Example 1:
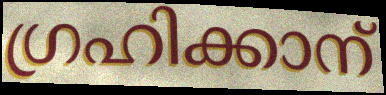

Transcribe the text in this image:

ഗ്രഹിക്കാന്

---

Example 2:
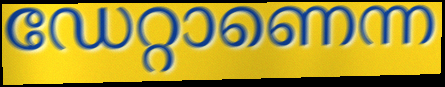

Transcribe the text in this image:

ഡേറ്റാണെന്ന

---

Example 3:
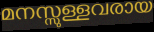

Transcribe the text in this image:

മനസ്സുള്ളവരായ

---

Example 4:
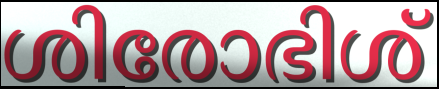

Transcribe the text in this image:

ശിരോഭിശ്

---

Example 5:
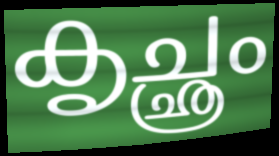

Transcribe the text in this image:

കൃച്ഛ്രം